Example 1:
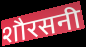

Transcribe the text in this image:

शौरसनी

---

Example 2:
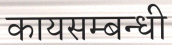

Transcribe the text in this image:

कायसम्बन्धी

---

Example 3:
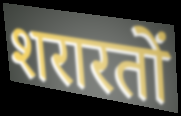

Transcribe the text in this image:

शरारतों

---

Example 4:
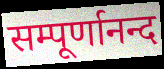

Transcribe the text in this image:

सम्पूर्णानन्द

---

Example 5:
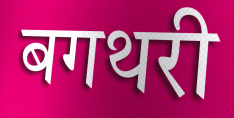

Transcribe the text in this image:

बगथरी